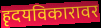
हृदयविकारावर